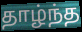
தாழ்ந்த